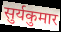
सुर्यकुमार